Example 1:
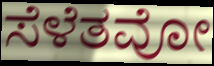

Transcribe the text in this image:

ಸೆಳೆತವೋ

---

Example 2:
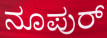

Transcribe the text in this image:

ನೂಪುರ್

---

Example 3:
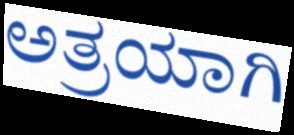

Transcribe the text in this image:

ಅತ್ರಯಾಗಿ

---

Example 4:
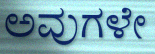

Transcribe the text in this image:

ಅವುಗಳೇ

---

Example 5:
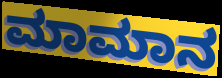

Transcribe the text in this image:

ಮಾಮಾನ